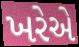
ખરેએ